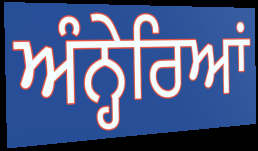
ਅੰਨ੍ਹੇਰਿਆਂ